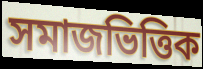
সমাজভিত্তিক